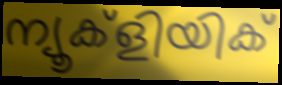
ന്യൂക്ളിയിക്